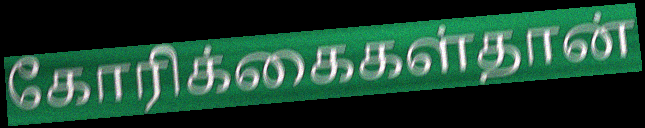
கோரிக்கைகள்தான்